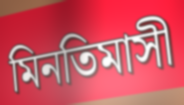
মিনতিমাসী